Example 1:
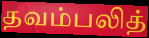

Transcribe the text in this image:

தவம்பலித்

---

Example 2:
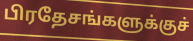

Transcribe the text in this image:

பிரதேசங்களுக்குச்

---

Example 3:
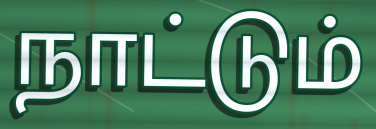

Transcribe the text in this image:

நாட்டும்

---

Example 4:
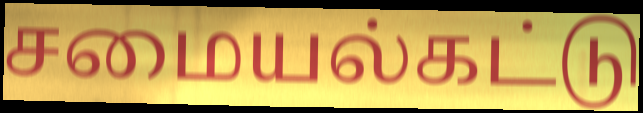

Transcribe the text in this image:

சமையல்கட்டு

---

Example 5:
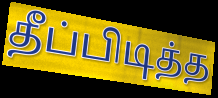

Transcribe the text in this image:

தீப்பிடித்த